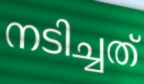
നടിച്ചത്